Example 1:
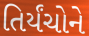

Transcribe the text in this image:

તિર્યંચોને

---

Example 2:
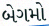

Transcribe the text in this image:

બેગમો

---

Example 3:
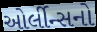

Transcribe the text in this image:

ઓર્લીન્સનો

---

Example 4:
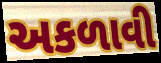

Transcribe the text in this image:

અકળાવી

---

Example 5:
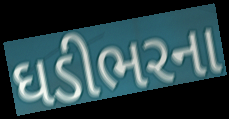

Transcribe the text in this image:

ઘડીભરના